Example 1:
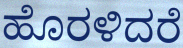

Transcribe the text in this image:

ಹೊರಳಿದರೆ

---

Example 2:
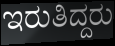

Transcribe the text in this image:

ಇರುತಿದ್ದರು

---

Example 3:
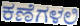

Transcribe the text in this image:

ಕಣೆಗಳಲಿ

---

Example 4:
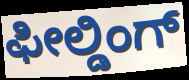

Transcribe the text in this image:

ಫೀಲ್ಡಿಂಗ್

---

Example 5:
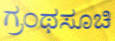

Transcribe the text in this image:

ಗ್ರಂಥಸೂಚಿ